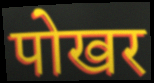
पोखर